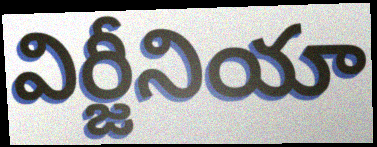
విర్జీనియా